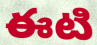
ఈటి